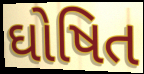
ઘોષિત